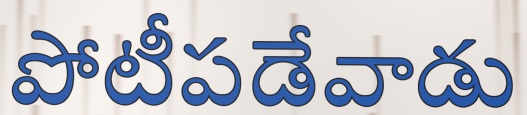
పోటీపడేవాడు